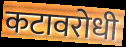
कटावरोधी